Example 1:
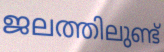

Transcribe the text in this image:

ജലത്തിലുണ്ട്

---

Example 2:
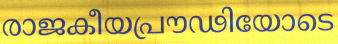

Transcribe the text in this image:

രാജകീയപ്രൗഢിയോടെ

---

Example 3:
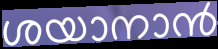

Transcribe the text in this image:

ശയാനാൻ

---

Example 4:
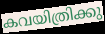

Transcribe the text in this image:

കവയിത്രിക്കു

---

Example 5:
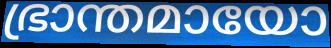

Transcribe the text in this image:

ഭ്രാന്തമായോ